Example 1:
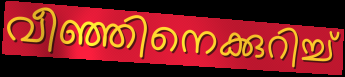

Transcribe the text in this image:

വീഞ്ഞിനെക്കുറിച്ച്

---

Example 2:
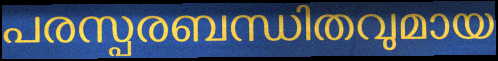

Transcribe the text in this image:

പരസ്പരബന്ധിതവുമായ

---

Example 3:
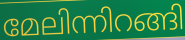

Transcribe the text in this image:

മേലിന്നിറങ്ങി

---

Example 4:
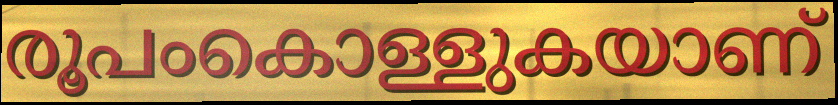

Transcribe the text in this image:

രൂപംകൊള്ളുകയാണ്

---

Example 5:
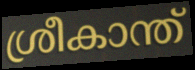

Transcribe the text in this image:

ശ്രീകാന്ത്